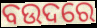
ବଉଦରେ